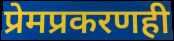
प्रेमप्रकरणही